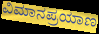
ವಿಮಾನಪ್ರಯಾಣ